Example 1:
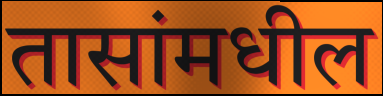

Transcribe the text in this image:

तासांमधील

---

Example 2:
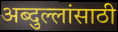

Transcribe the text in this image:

अब्दुल्लांसाठी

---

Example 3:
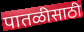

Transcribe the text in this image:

पातळीसाठी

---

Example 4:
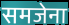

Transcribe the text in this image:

समजेना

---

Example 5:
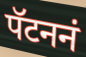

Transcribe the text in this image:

पॅटननं